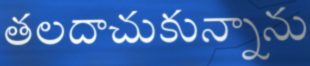
తలదాచుకున్నాను